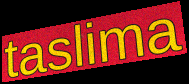
taslima